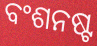
ବଂଶନଷ୍ଟ